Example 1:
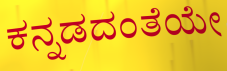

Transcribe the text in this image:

ಕನ್ನಡದಂತೆಯೇ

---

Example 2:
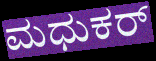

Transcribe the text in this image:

ಮಧುಕರ್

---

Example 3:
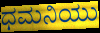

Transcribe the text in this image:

ಧಮನಿಯು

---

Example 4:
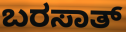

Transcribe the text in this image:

ಬರಸಾತ್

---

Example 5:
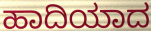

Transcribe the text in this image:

ಹಾದಿಯಾದ